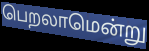
பெறலாமென்று